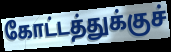
கோட்டத்துக்குச்